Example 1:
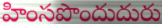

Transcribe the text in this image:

హింసపొందుదురు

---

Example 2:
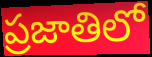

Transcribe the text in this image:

ప్రజాతిలో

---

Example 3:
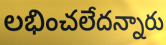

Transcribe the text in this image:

లభించలేదన్నారు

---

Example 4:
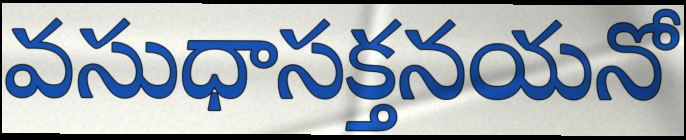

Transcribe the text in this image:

వసుధాసక్తనయనో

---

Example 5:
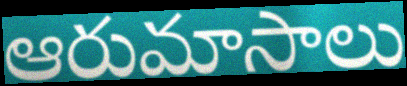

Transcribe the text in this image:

ఆరుమాసాలు